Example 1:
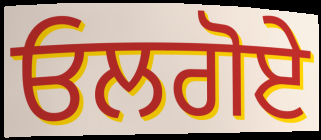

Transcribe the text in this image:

ਓਲਗੋਏ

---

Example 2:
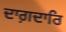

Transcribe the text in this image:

ਦਾਗ਼ਦਾਰਿ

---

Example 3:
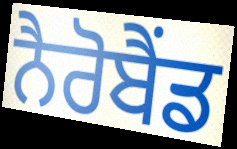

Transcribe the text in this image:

ਨੈਰੋਬੈਂਡ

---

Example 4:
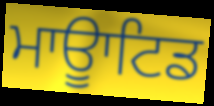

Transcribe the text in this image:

ਮਾਊਾਟਿਡ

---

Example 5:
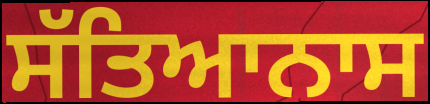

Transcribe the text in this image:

ਸੱਤਿਆਨਾਸ